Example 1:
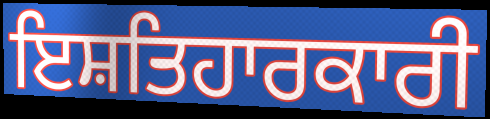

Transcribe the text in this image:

ਇਸ਼ਤਿਹਾਰਕਾਰੀ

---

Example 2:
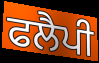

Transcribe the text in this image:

ਫਲੈਪੀ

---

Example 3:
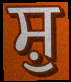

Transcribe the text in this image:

ਸ਼ੁ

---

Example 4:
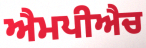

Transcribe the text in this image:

ਐਮਪੀਐਚ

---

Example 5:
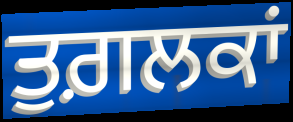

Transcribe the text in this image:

ਤੁਗ਼ਲਕਾਂ